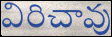
విరిచావు